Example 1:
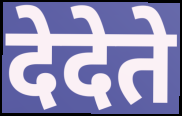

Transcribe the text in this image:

देदेते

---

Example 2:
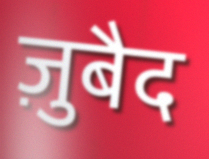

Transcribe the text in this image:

ज़ुबैद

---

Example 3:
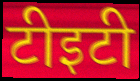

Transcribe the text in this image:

टीइटी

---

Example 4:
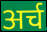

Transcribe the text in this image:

अर्च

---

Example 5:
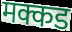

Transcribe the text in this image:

मक्कड